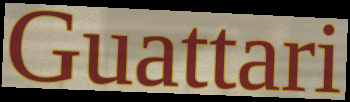
Guattari